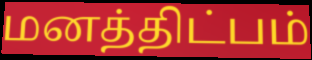
மனத்திட்பம்